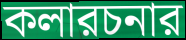
কলারচনার